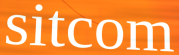
sitcom